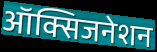
ऑक्सिजनेशन